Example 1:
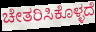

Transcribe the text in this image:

ಚೇತರಿಸಿಕೊಳ್ಳದೆ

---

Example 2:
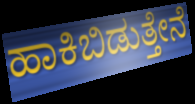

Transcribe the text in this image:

ಹಾಕಿಬಿಡುತ್ತೇನೆ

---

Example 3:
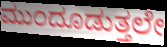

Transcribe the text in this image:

ಮುಂದೂಡುತ್ತಲೇ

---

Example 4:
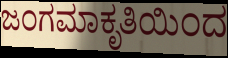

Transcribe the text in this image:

ಜಂಗಮಾಕೃತಿಯಿಂದ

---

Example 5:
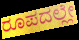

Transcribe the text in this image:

ರೂಪದಲ್ಲೇ